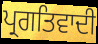
ਪ੍ਰਗਤਿਵਾਦੀ